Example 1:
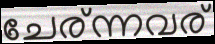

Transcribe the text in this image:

ചേര്ന്നവര്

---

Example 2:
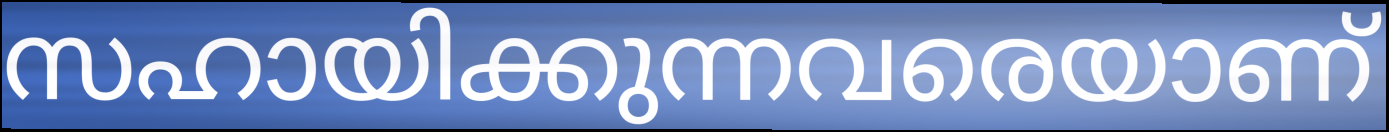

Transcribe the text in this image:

സഹായിക്കുന്നവരെയാണ്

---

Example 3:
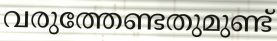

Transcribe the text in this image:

വരുത്തേണ്ടതുമുണ്ട്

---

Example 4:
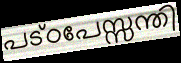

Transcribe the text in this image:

പട്ഠപേസ്സന്തി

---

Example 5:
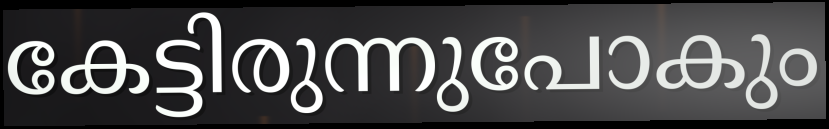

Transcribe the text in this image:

കേട്ടിരുന്നുപോകും